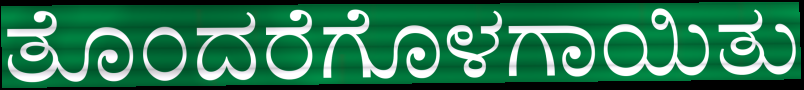
ತೊಂದರೆಗೊಳಗಾಯಿತು